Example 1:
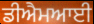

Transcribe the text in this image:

ਡੀਐਮਆਈ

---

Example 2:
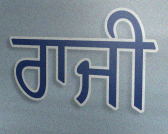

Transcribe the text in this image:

ਰਾਜੀ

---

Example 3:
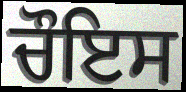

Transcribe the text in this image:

ਚੌਇਸ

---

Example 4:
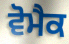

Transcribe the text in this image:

ਵੋਮੈਕ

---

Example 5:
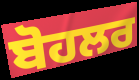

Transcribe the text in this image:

ਬੋਹਲਰ